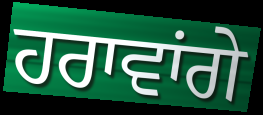
ਹਰਾਵਾਂਗੇ